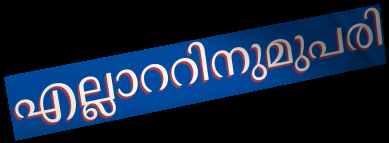
എല്ലാററിനുമുപരി